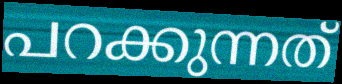
പറക്കുന്നത്